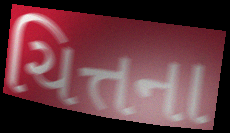
ચિત્તના